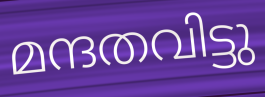
മന്ദതവിട്ടു